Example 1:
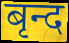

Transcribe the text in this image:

बृन्द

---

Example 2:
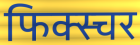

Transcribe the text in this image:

फिक्स्चर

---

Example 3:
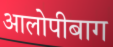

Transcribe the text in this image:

आलोपीबाग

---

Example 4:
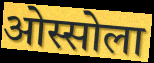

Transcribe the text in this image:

ओस्सोला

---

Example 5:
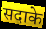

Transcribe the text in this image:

सदाके